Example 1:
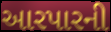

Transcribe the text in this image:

આરપારની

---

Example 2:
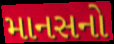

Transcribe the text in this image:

માનસનો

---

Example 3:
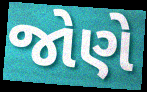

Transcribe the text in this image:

જોણે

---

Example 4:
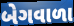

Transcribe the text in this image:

બેગવાળા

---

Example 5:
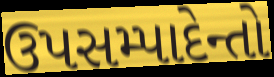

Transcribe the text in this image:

ઉપસમ્પાદેન્તો